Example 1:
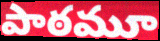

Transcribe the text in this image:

పాఠమూ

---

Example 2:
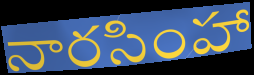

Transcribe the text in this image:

నారసింహా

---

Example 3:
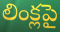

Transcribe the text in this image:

లింక్లపై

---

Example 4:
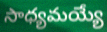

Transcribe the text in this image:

సాధ్యమయ్యే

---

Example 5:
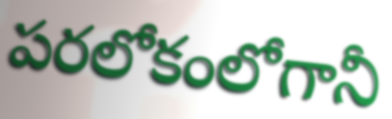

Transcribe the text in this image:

పరలోకంలోగానీ